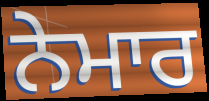
ਨੇਮਾਰ